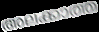
അലക്കാത്ത